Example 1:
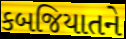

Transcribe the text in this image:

કબજિયાતને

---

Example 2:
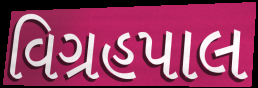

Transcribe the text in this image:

વિગ્રહપાલ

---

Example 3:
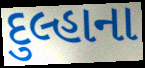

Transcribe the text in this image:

દુલ્હાના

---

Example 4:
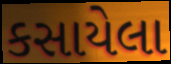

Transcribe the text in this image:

કસાયેલા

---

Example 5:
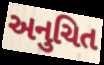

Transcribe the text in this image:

અનુચિત